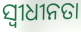
ସ୍ୱୀଧୀନତା